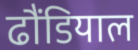
ढौंडियाल